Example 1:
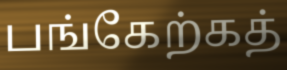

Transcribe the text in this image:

பங்கேற்கத்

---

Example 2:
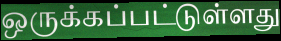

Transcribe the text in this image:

ஒருக்கப்பட்டுள்ளது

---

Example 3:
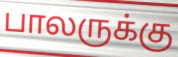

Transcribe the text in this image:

பாலருக்கு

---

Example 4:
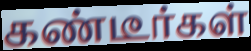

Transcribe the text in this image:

கண்டீர்கள்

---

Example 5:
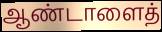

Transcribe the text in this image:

ஆண்டாளைத்